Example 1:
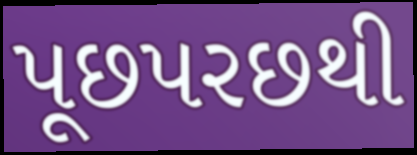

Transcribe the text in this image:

પૂછપરછથી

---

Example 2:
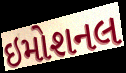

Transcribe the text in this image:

ઇમોશનલ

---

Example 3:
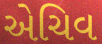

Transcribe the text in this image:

એચિવ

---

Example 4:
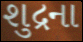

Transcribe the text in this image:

શુદ્રના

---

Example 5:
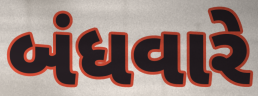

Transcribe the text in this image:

બંધવારે